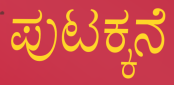
ಪುಟಕ್ಕನೆ